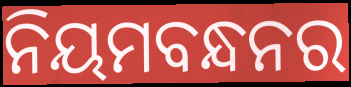
ନିୟମବନ୍ଧନର